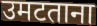
उमटताना